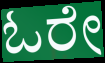
ಓರೇ